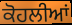
ਕੋਹਲੀਆਂ